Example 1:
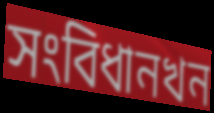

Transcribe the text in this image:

সংবিধানখন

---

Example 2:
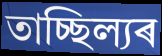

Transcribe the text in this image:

তাচ্ছিল্যৰ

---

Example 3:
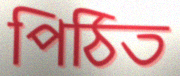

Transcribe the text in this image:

পিঠিত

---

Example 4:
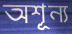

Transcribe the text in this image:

অশূন্য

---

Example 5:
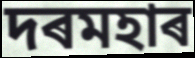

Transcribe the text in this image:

দৰমহাৰ